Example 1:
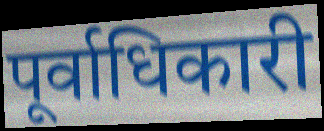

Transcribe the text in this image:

पूर्वाधिकारी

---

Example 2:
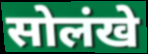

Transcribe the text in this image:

सोलंखे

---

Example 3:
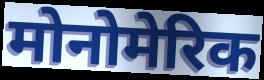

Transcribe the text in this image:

मोनोमेरिक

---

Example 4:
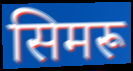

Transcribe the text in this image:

सिमरू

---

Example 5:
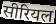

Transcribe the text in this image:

सीरियल